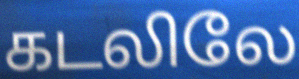
கடலிலே